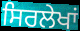
ਸਿਰਲੇਖਾਂ